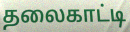
தலைகாட்டி